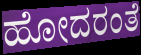
ಹೋದರಂತೆ